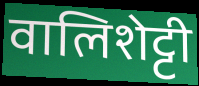
वालिशेट्टी